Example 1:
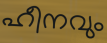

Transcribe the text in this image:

ഹീനവും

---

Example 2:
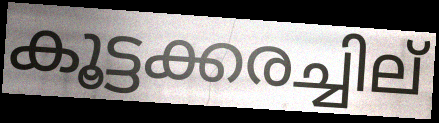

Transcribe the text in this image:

കൂട്ടക്കരച്ചില്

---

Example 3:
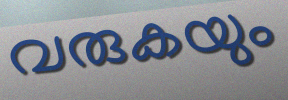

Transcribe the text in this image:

വരുകയും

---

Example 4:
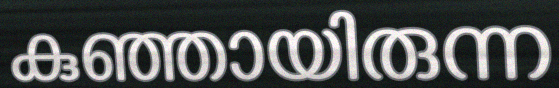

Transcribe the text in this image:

കുഞ്ഞായിരുന്ന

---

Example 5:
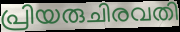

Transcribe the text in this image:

പ്രിയരുചിരവതി